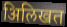
अिलिखत